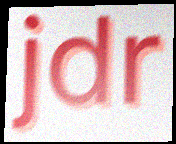
jdr